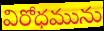
విరోధమును